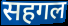
सहगल